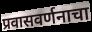
प्रवासवर्णनाचा